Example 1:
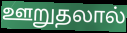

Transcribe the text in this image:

ஊறுதலால்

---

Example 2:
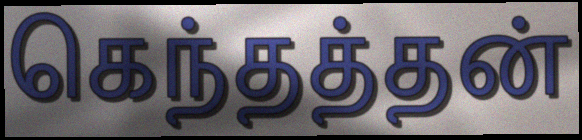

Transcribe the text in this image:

கெந்தத்தன்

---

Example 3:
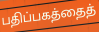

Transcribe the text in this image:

பதிப்பகத்தைத்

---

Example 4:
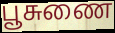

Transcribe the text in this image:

பூசுணை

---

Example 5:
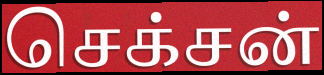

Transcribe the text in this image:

செக்சன்